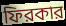
ফিরকার